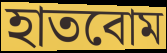
হাতবোম